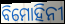
ବିମୋହିନୀ